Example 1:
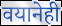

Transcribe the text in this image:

वयानेही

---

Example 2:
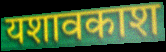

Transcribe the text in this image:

यशावकाश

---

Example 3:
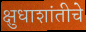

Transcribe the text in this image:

क्षुधाशांतीचे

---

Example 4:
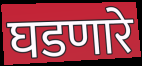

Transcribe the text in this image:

घडणारे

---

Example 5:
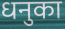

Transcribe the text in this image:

धनुका